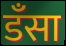
डँसा